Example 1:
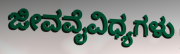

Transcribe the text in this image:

ಜೀವವೈವಿಧ್ಯಗಳು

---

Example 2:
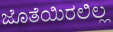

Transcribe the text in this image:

ಜೊತೆಯಿರಲಿಲ್ಲ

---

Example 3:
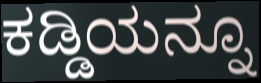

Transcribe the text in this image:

ಕಡ್ಡಿಯನ್ನೂ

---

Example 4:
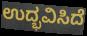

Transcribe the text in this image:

ಉದ್ಭವಿಸಿದೆ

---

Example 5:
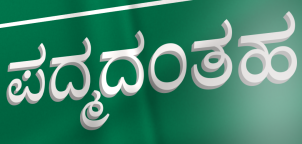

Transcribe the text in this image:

ಪದ್ಮದಂತಹ